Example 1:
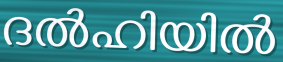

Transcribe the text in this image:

ദൽഹിയിൽ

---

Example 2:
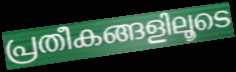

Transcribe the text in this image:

പ്രതീകങ്ങളിലൂടെ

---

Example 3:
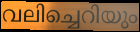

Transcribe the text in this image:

വലിച്ചെറിയും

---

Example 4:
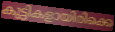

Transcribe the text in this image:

കുട്ടികളായിരിക്കെ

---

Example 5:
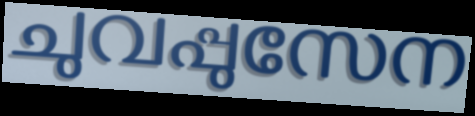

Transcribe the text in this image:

ചുവപ്പുസേന